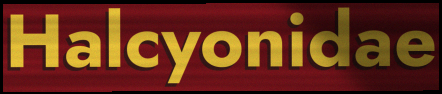
Halcyonidae